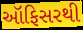
ઑફિસરથી